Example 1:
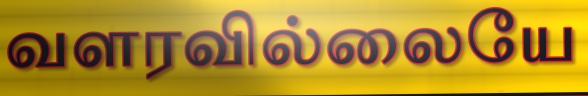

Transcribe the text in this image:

வளரவில்லையே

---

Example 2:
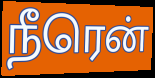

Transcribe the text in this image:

நீரென்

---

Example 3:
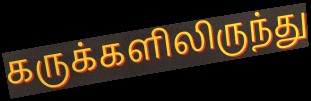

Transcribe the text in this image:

கருக்களிலிருந்து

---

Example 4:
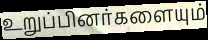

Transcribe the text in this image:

உறுப்பினர்களையும்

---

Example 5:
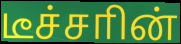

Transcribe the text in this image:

டீச்சரின்